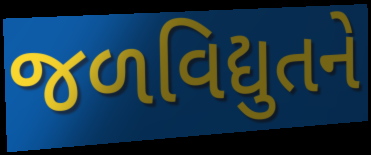
જળવિદ્યુતને